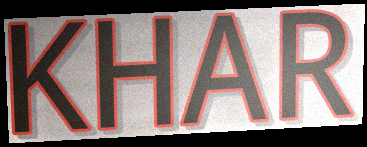
KHAR